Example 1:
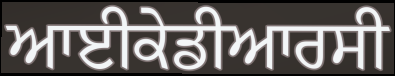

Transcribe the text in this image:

ਆਈਕੇਡੀਆਰਸੀ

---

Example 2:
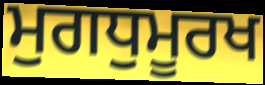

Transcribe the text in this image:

ਮੁਗਧੁਮੂਰਖ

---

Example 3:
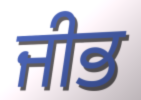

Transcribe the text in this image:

ਜੀਭ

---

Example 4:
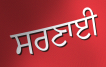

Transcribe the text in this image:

ਸਰਣਾਈ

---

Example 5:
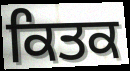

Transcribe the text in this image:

ਕਿਤਕ